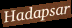
Hadapsar